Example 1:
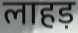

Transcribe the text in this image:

लाहड़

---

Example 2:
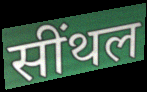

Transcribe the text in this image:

सींथल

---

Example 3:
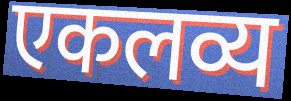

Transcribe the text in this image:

एकलव्य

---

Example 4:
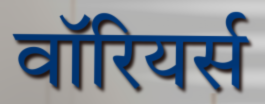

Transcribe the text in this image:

वॉरियर्स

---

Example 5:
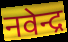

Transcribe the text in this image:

नवेन्द्र